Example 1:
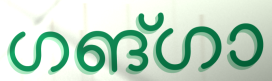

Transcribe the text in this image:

ഗങ്ഗാ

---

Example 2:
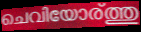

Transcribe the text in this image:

ചെവിയോര്ത്തു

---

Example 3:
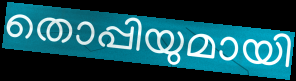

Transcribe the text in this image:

തൊപ്പിയുമായി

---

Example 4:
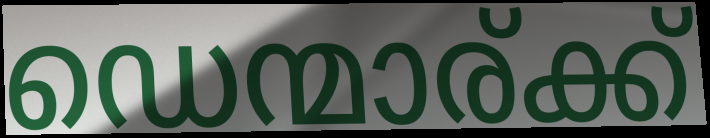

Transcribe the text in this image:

ഡെന്മാര്ക്ക്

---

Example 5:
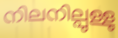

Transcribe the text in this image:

നിലനില്പുള്ളു